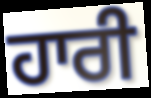
ਹਾਰੀ